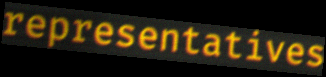
representatives